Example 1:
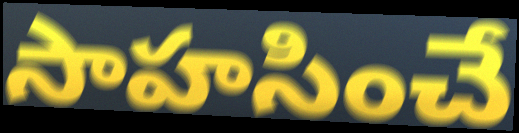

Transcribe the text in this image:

సాహసించే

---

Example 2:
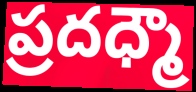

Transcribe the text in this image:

ప్రదధ్మౌ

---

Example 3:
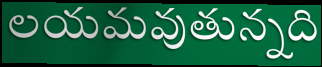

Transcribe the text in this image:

లయమవుతున్నది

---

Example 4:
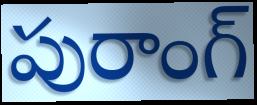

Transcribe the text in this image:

పురాంగ్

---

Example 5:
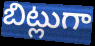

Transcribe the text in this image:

బిట్లుగా